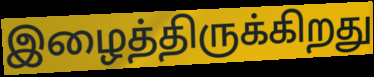
இழைத்திருக்கிறது